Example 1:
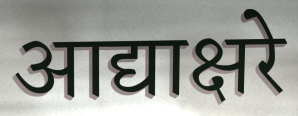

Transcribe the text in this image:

आद्याक्षरे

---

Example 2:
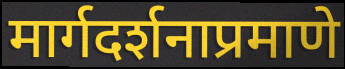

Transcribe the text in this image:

मार्गदर्शनाप्रमाणे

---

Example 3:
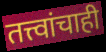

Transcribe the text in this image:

तत्त्वांचाही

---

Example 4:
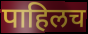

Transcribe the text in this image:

पाहिलच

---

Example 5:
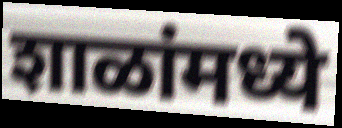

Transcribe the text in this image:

शाळांमध्ये